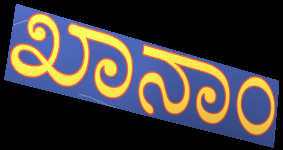
ಖಾನಾಂ